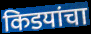
किडयांचा